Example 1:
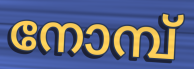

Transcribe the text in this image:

നോമ്പ്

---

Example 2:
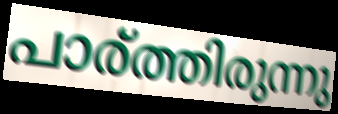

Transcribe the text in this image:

പാര്ത്തിരുന്നു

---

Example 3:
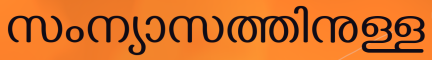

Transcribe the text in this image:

സംന്യാസത്തിനുള്ള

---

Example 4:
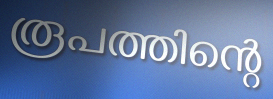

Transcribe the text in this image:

രൂപത്തിന്റെ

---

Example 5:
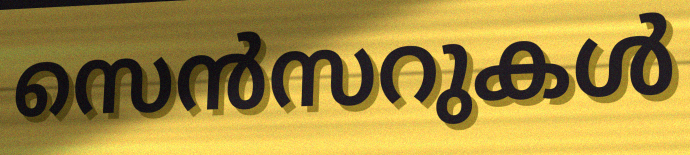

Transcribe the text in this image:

സെൻസറുകൾ